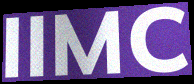
IIMC